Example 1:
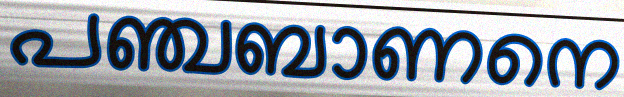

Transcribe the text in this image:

പഞ്ചബാണനെ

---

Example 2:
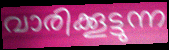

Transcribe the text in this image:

വാരിക്കൂട്ടുന്ന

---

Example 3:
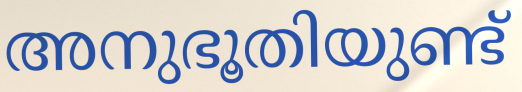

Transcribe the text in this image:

അനുഭൂതിയുണ്ട്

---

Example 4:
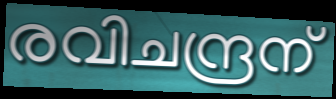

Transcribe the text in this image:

രവിചന്ദ്രന്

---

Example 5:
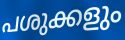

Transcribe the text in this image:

പശുക്കളും